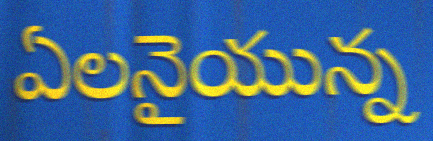
ఏలనైయున్న